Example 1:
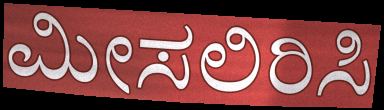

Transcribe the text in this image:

ಮೀಸಲಿರಿಸಿ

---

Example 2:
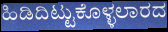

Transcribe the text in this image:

ಹಿಡಿದಿಟ್ಟುಕೊಳ್ಳಲಾರದ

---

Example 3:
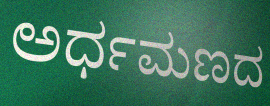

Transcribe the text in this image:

ಅರ್ಧಮಣದ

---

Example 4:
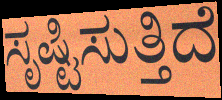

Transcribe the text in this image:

ಸೃಷ್ಟಿಸುತ್ತಿದೆ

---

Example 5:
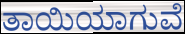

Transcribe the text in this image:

ತಾಯಿಯಾಗುವೆ